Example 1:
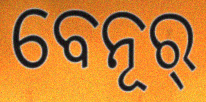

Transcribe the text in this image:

ବେନୂର୍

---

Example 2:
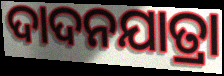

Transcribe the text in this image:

ଦାଦନଯାତ୍ରା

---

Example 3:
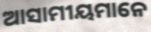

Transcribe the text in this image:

ଆସାମୀୟମାନେ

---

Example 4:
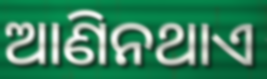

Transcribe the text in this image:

ଆଣିନଥାଏ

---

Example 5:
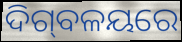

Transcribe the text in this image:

ଦିଗ୍‍ବଳୟରେ